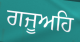
ਗਜੂਅਹਿ